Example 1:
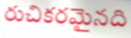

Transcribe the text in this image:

రుచికరమైనది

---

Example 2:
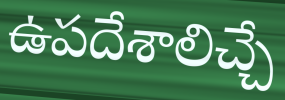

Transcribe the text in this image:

ఉపదేశాలిచ్చే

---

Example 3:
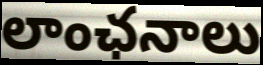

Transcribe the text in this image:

లాంఛనాలు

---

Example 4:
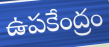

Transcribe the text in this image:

ఉపకేంద్రం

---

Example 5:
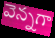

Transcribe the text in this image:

వెన్నగా